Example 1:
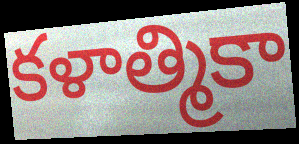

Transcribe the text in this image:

కళాత్మికా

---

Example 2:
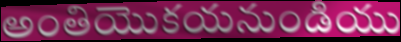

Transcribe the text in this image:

అంతియొకయనుండియు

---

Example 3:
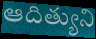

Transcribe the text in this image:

ఆదిత్యుని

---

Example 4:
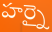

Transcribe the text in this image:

హర్నై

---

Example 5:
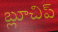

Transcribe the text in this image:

బ్లూచిప్